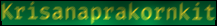
Krisanaprakornkit